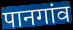
पानगांव